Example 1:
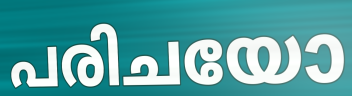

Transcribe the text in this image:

പരിചയോ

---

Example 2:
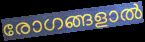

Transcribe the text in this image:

രോഗങ്ങളാൽ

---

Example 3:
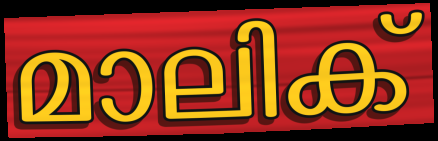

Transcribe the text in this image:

മാലിക്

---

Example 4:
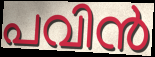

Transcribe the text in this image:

പവിൻ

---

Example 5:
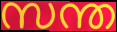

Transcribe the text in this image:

സന്ത